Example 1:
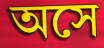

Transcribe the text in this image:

অসে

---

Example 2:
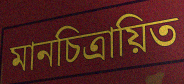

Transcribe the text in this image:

মানচিত্রায়িত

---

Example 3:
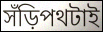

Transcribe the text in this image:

সঁড়িপথটাই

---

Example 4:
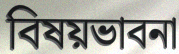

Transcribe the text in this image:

বিষয়ভাবনা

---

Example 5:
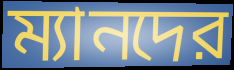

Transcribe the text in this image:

ম্যানদের